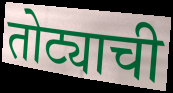
तोट्याची